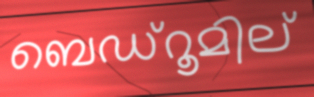
ബെഡ്റൂമില്